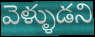
వెళ్ళుడని